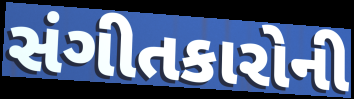
સંગીતકારોની